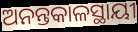
ଅନନ୍ତକାଳସ୍ଥାୟୀ